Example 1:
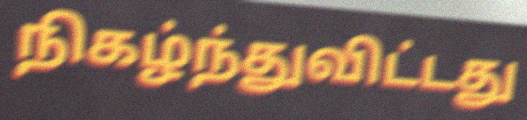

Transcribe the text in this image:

நிகழ்ந்துவிட்டது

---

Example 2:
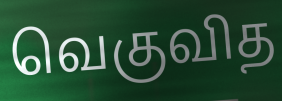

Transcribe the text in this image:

வெகுவித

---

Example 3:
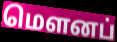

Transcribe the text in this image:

மெளனப்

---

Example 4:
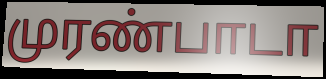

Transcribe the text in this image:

முரண்பாடா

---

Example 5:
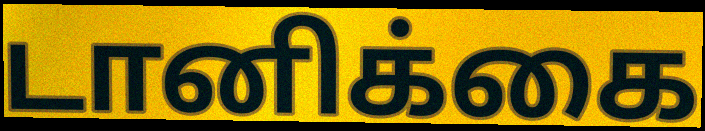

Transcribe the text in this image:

டானிக்கை